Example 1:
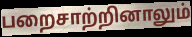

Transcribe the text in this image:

பறைசாற்றினாலும்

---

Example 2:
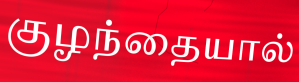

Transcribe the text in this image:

குழந்தையால்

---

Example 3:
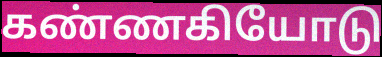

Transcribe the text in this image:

கண்ணகியோடு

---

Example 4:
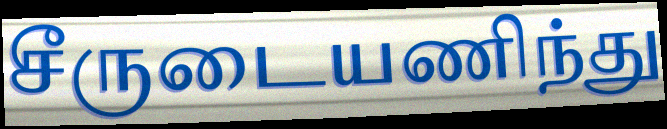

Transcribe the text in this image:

சீருடையணிந்து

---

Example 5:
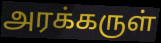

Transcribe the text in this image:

அரக்கருள்